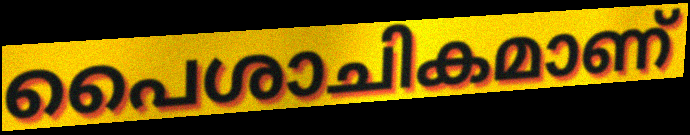
പൈശാചികമാണ്